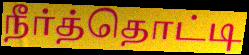
நீர்த்தொட்டி